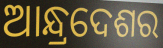
ଆନ୍ଧ୍ରଦେଶର